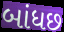
બાંધછ